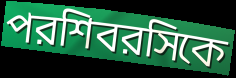
পরশিবরসিকে